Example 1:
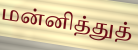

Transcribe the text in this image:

மன்னித்துத்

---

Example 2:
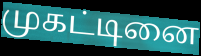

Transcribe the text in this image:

முகட்டினை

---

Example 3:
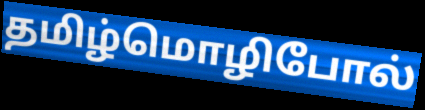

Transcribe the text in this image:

தமிழ்மொழிபோல்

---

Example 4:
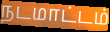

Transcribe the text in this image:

நடமாட்டம்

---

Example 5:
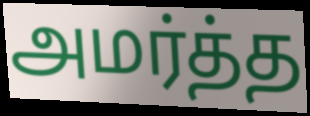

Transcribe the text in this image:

அமர்த்த